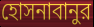
হোসনাবানুর